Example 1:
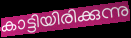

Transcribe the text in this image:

കാട്ടിയിരിക്കുന്നു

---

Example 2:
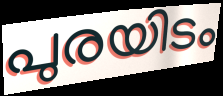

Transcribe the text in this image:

പുരയിടം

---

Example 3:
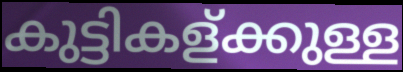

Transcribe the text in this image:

കുട്ടികള്ക്കുള്ള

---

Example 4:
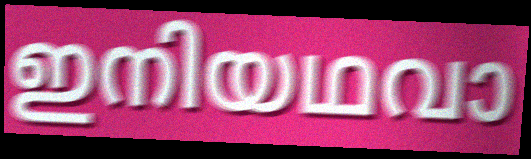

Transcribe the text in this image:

ഇനിയഥവാ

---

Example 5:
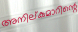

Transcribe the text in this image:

അനില്കുമാറിന്റെ